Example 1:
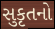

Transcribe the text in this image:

સુકૃતનો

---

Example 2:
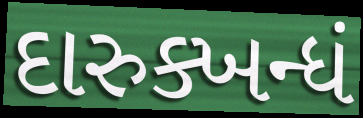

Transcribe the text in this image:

દારુક્ખન્ધં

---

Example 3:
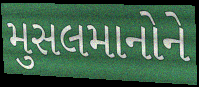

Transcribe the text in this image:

મુસલમાનોને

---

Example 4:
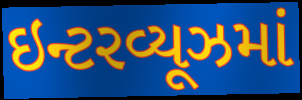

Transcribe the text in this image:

ઇન્ટરવ્યૂઝમાં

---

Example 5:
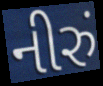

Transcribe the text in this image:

નીરું